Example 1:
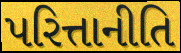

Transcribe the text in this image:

પરિત્તાનીતિ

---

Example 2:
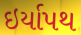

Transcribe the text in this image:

ઇર્યાપથ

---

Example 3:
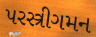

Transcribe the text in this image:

પરસ્ત્રીગમન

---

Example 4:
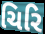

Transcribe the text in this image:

ચિરિ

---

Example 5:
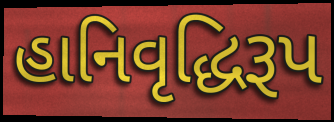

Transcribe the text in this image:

હાનિવૃદ્ધિરૂપ